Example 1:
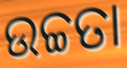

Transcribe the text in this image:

ଉଚ୍ଚତା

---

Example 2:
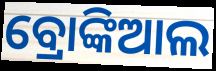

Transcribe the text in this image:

ବ୍ରୋଙ୍କିଆଲ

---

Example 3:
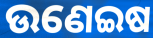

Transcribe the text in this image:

ଉଣେଇଷ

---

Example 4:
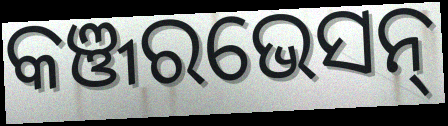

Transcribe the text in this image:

କଞ୍ଜରଭେସନ୍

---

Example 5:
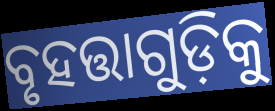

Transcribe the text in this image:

ବୃହତ୍ତାଗୁଡ଼ିକୁ